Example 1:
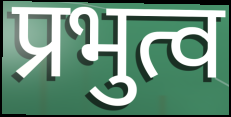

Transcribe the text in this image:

प्रभुत्व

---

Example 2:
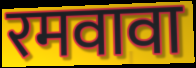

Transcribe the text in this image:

रमवावा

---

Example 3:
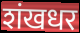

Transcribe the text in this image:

शंखधर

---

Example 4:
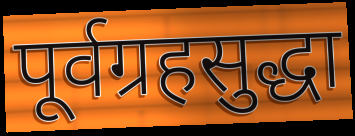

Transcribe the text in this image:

पूर्वग्रहसुद्धा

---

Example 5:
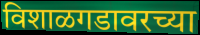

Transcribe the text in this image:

विशाळगडावरच्या